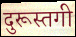
दुरूस्तगी